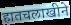
हातचलाखीने